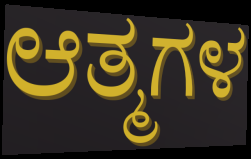
ಆತ್ಮಗಳ